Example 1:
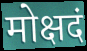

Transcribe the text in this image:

मोक्षदं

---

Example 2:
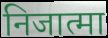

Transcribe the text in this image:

निजात्मा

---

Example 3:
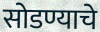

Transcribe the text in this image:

सोडण्याचे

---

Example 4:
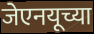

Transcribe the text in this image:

जेएनयूच्या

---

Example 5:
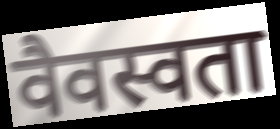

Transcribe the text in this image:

वैवस्वता